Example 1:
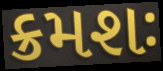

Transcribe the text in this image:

ક્રમશઃ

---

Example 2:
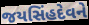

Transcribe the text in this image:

જયસિંહદેવને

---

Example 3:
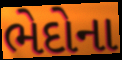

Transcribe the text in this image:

ભેદોના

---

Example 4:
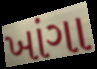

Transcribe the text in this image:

ખાંગા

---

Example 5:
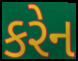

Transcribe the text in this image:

કરેન